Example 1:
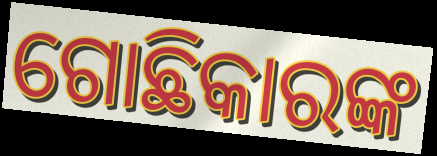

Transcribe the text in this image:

ଗୋଛିକାରଙ୍କ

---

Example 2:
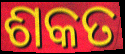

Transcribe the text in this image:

ଶକତ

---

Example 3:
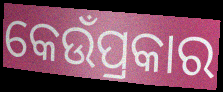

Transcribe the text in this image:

କେଉଁପ୍ରକାର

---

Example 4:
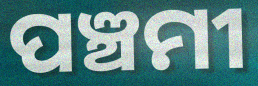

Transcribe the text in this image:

ପଞ୍ଚମୀ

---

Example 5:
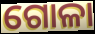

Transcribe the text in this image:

ଗୋଳା